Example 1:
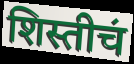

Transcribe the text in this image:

शिस्तीचं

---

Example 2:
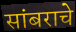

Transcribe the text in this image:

सांबराचे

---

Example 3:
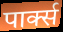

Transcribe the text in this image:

पार्क्‍स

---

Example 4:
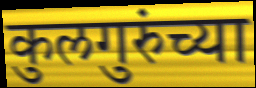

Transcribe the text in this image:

कुलगुरुंच्या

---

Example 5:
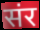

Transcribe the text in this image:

संर